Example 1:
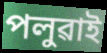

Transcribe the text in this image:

পলুৱাই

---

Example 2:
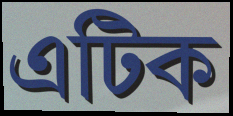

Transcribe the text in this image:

এটিক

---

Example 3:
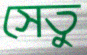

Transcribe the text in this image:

সেতু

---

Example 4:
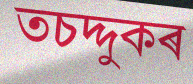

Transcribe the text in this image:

তচদ্দুকৰ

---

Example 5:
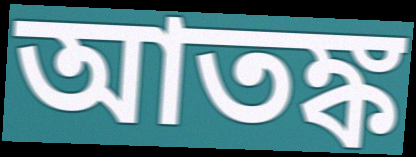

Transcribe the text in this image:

আতঙ্ক